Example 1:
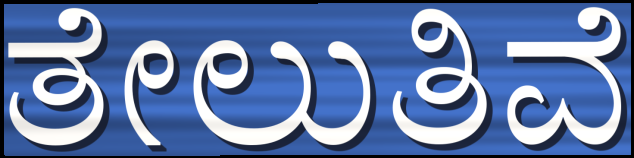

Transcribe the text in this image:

ತೇಲುತಿವೆ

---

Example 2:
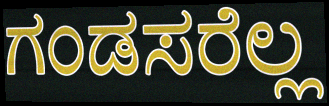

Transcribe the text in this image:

ಗಂಡಸರೆಲ್ಲ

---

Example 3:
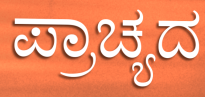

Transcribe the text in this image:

ಪ್ರಾಚ್ಯದ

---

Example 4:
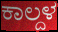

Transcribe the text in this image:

ಕಾಲ್ದಳ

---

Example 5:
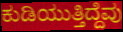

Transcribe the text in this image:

ಕುಡಿಯುತ್ತಿದ್ದೆವು